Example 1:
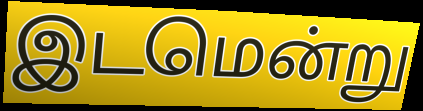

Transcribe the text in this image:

இடமென்று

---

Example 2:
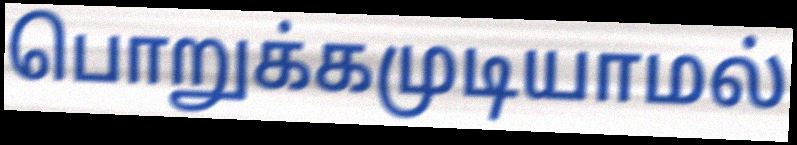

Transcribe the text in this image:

பொறுக்கமுடியாமல்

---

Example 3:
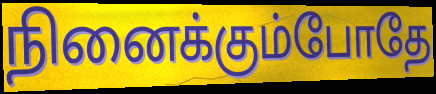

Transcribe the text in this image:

நினைக்கும்போதே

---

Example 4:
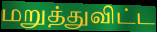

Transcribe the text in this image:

மறுத்துவிட்ட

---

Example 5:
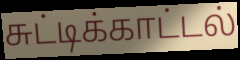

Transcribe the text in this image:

சுட்டிக்காட்டல்